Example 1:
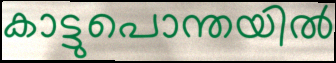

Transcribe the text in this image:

കാട്ടുപൊന്തയിൽ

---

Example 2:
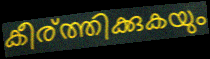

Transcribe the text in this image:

കീര്ത്തിക്കുകയും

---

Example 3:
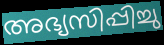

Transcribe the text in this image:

അഭ്യസിപ്പിച്ചു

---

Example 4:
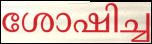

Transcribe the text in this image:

ശോഷിച്ച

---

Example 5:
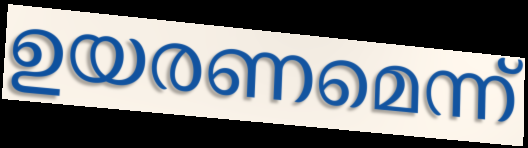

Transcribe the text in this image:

ഉയരണമെന്ന്